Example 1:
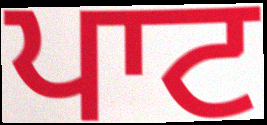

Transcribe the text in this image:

ਪਾਟ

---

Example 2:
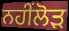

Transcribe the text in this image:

ਨਹੀਂਲੋੜ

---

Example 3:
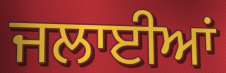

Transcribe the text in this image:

ਜਲਾਈਆਂ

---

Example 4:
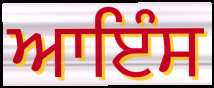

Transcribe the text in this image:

ਆਇੰਸ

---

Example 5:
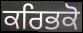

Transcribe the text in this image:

ਕਰਿਭਕੋ